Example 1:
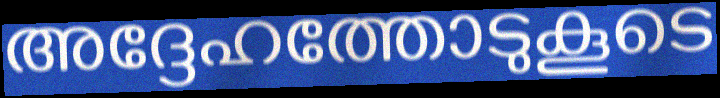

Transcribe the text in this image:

അദ്ദേഹത്തോടുകൂടെ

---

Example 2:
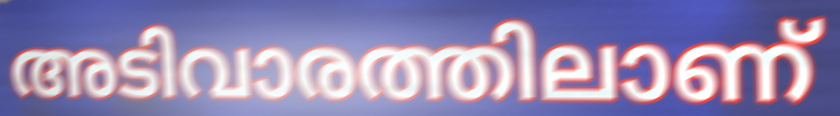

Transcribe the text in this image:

അടിവാരത്തിലാണ്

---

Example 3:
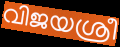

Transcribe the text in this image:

വിജയശ്രീ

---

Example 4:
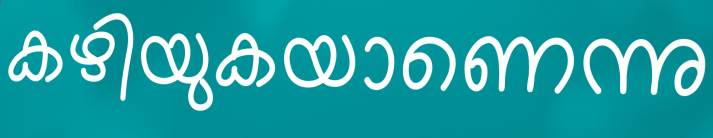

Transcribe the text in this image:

കഴിയുകയാണെന്നു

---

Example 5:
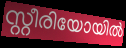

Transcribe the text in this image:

സ്റ്റീരിയോയിൽ